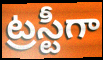
ట్రస్టీగా